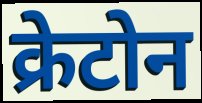
क्रेटोन